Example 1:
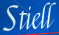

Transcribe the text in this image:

Stiell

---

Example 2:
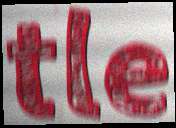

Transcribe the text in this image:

tle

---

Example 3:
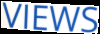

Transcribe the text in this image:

VIEWS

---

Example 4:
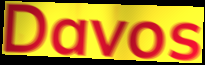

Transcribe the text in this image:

Davos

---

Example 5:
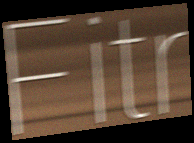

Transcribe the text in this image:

Fitr